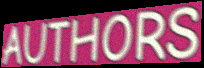
AUTHORS